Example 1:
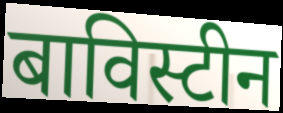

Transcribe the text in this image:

बाविस्टीन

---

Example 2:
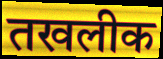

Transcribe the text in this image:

तखलीक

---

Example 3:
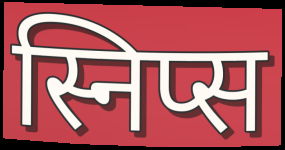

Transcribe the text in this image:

स्निप्स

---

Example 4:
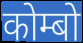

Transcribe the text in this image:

कोम्बो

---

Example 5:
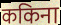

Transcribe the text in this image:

ककिना